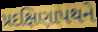
પ્રદક્ષિણાપથને